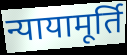
न्यायामूर्ति